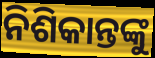
ନିଶିକାନ୍ତଙ୍କୁ